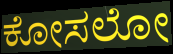
ಕೋಸಲೋ